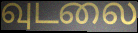
வுடலை